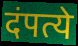
दंपत्ये